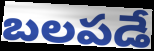
బలపడే